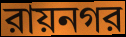
রায়নগর